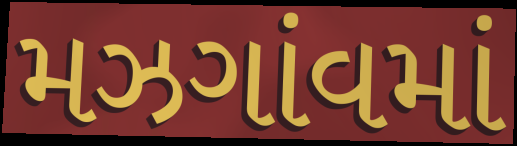
મઝગાંવમાં